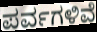
ಪರ್ವಗಳಿವೆ